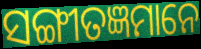
ସଙ୍ଗୀତଜ୍ଞମାନେ